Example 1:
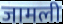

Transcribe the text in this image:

जामली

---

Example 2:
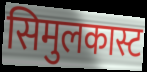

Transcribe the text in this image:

सिमुलकास्ट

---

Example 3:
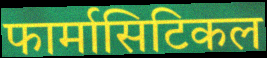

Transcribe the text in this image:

फार्मासिटिकल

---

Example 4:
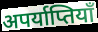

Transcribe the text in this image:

अपर्याप्तियाँ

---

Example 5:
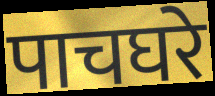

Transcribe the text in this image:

पाचघरे